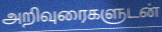
அறிவுரைகளுடன்